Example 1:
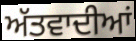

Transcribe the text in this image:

ਅੱਤਵਾਦੀਆਂ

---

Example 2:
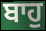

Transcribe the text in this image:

ਬਾਹੁ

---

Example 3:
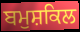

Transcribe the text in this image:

ਬਮੁਸ਼ਕਿਲ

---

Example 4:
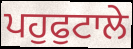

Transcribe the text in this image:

ਪਹੁਫੁਟਾਲੇ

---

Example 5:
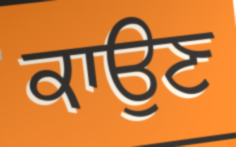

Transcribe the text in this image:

ਕਾਉਣ